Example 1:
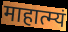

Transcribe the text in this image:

माहात्म्यं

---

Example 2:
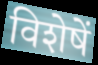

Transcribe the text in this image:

विशेषें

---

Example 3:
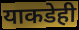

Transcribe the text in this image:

याकडेही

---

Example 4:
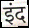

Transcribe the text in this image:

इंद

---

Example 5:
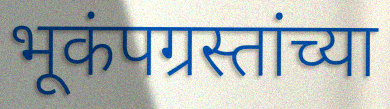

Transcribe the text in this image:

भूकंपग्रस्तांच्या